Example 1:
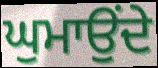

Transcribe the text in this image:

ਘੁਮਾਉਂਦੇ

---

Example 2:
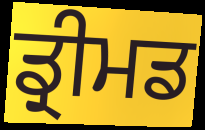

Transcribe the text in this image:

ਡ੍ਰੀਮਡ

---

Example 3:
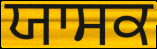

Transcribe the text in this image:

ਯਾਸਕ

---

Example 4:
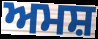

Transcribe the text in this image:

ਅਮਸ਼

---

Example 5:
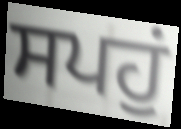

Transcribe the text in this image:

ਸਪਹੁਂ